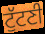
ਟੁੱਟਣੀ